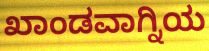
ಖಾಂಡವಾಗ್ನಿಯ